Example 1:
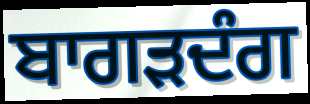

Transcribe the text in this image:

ਬਾਗੜਦੰਗ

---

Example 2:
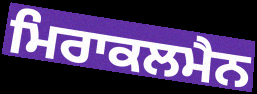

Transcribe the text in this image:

ਮਿਰਾਕਲਮੈਨ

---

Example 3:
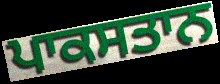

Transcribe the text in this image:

ਪਾਕਸਤਾਨ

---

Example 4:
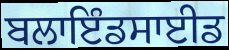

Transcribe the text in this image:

ਬਲਾਇੰਡਸਾਈਡ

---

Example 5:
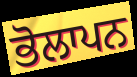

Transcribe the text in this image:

ਭੋਲਾਪਨ